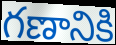
గణానికి